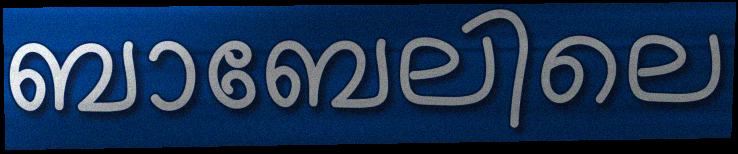
ബാബേലിലെ